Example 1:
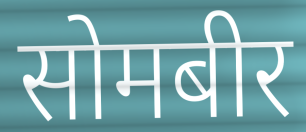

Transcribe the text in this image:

सोमबीर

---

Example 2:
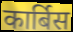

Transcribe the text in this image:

कार्बिस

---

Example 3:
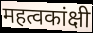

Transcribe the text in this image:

महत्वकांक्षी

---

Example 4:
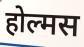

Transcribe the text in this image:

होल्मस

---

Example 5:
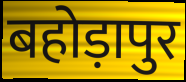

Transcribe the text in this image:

बहोड़ापुर